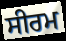
ਸੀਰਮ